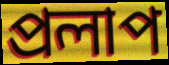
প্রলাপ